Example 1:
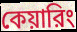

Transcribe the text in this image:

কেয়ারিং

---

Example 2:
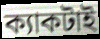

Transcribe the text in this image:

ক্যাকটাই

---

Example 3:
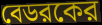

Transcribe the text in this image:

বেডরকের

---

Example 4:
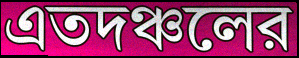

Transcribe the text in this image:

এতদঞ্চলের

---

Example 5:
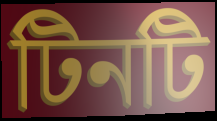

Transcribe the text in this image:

টিনটি